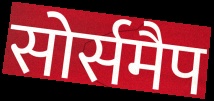
सोर्समैप